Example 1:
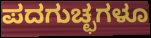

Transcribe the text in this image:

ಪದಗುಚ್ಛಗಳೂ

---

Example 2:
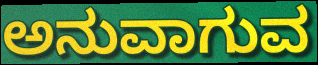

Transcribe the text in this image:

ಅನುವಾಗುವ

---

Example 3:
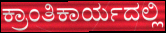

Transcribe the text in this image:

ಕ್ರಾಂತಿಕಾರ್ಯದಲ್ಲಿ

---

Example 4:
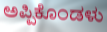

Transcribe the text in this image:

ಅಪ್ಪಿಕೊಂಡಳು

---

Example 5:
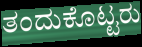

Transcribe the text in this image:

ತಂದುಕೊಟ್ಟರು